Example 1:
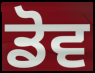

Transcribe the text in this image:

ਡੋਵ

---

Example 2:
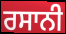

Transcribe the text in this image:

ਰਸਾਨੀ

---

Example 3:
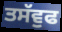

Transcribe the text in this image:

ਤਸੱਵੁਫ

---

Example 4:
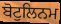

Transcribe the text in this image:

ਬੋਟੁਲਿਨਮ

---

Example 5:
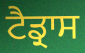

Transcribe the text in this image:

ਟੈਡ੍ਰਾਸ